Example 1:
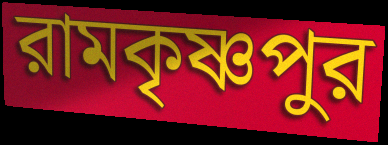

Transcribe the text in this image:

রামকৃষ্ণপুর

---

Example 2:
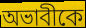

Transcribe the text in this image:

অভাবীকে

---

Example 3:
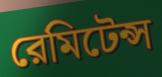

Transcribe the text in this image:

রেমিটেন্স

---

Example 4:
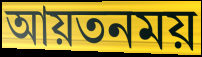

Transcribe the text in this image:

আয়তনময়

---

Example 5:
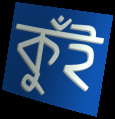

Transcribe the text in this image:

কুঁই